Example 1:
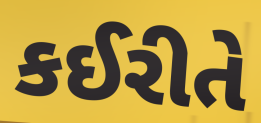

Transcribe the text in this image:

કઈરીતે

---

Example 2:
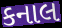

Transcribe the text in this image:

કનાલ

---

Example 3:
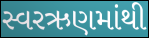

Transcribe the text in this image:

સ્વરઋણમાંથી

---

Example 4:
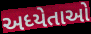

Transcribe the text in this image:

અધ્યેતાઓ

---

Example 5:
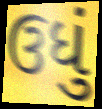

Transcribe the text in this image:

ઉધું